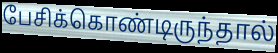
பேசிக்கொண்டிருந்தால்